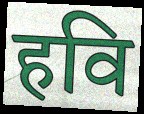
हवि